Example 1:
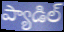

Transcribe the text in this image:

ప్యాడిల్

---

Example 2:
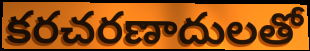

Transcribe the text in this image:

కరచరణాదులతో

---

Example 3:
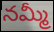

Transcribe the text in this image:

నమ్మీ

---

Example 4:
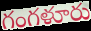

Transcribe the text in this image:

గంగళూరు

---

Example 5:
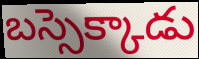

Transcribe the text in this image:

బస్సెక్కాడు